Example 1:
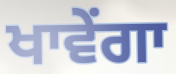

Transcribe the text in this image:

ਖਾਵੇਂਗਾ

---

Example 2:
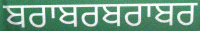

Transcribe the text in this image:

ਬਰਾਬਰਬਰਾਬਰ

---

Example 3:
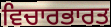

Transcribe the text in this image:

ਵਿਚਾਰਭਾਰਤ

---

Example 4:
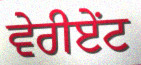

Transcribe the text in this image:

ਵੇਰੀਏਂਟ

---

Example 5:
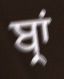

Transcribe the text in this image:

ਬ੍ਰਾਂ